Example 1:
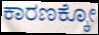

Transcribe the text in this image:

ಕಾರಣಕ್ಕೋ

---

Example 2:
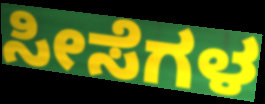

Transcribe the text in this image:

ಸೀಸೆಗಳ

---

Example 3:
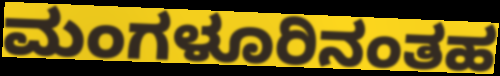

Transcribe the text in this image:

ಮಂಗಳೂರಿನಂತಹ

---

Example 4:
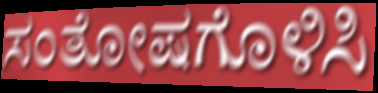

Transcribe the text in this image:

ಸಂತೋಷಗೊಳಿಸಿ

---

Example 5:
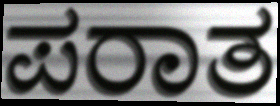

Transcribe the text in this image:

ಪರಾತ